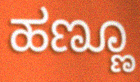
ಹಣ್ಣೂ